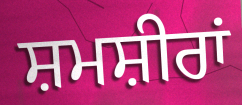
ਸ਼ਮਸ਼ੀਰਾਂ